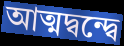
আত্মদ্বন্দ্বে